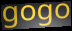
gogo